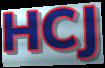
HCJ